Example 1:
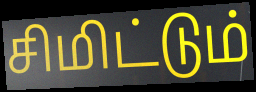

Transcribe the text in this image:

சிமிட்டும்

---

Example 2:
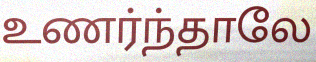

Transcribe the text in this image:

உணர்ந்தாலே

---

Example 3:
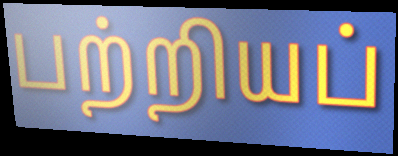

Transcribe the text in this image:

பற்றியப்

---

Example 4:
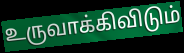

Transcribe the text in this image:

உருவாக்கிவிடும்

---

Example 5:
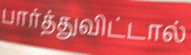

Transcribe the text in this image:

பார்த்துவிட்டால்